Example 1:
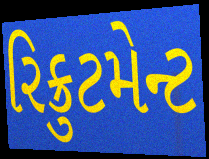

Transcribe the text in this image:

રિક્રુટમેન્ટ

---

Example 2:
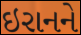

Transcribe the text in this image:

ઇરાનને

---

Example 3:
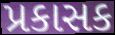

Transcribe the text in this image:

પ્રકાસક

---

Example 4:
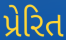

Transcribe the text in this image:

પ્રેરિત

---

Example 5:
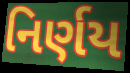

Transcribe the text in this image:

નિર્ણય